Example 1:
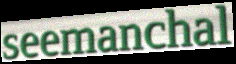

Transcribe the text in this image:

seemanchal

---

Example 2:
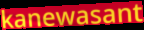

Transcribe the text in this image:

kanewasant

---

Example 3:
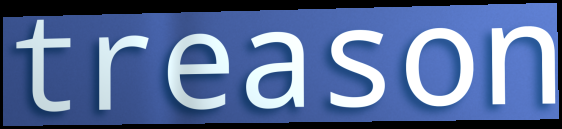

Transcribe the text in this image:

treason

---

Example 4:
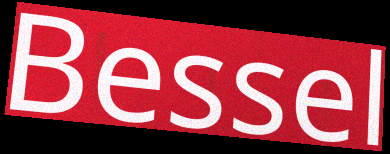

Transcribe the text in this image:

Bessel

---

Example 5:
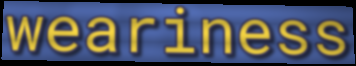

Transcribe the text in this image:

weariness